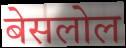
बेसलोल